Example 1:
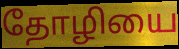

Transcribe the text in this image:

தோழியை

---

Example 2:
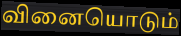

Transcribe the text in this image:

வினையொடும்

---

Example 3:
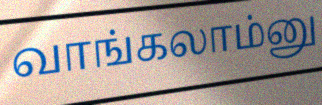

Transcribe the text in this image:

வாங்கலாம்னு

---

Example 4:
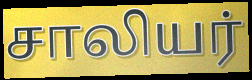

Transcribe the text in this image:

சாலியர்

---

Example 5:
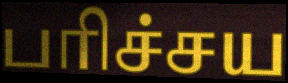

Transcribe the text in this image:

பரிச்சய